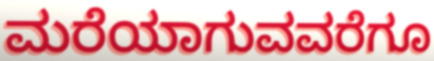
ಮರೆಯಾಗುವವರೆಗೂ